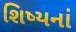
શિષ્યનાં